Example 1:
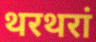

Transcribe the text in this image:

थरथरां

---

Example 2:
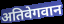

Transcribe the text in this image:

अतिवेगवान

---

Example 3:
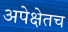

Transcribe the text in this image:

अपेक्षेतच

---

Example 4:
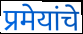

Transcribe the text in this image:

प्रमेयांचे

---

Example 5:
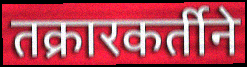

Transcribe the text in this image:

तक्रारकर्तीने